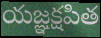
యజ్ఞక్షపిత